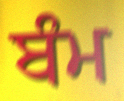
ਬੰਮ